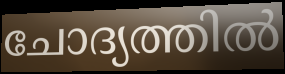
ചോദ്യത്തിൽ